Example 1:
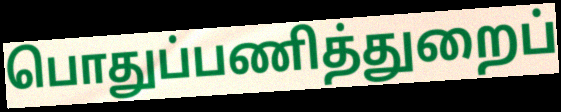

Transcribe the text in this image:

பொதுப்பணித்துறைப்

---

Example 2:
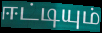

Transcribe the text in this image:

ஈட்டியும்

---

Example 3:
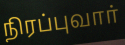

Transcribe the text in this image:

நிரப்புவார்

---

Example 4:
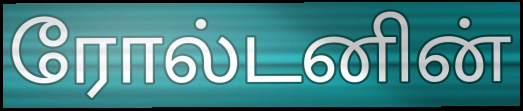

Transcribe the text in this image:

ரோல்டனின்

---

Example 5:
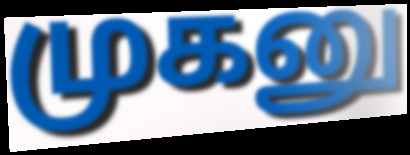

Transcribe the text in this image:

முகனு